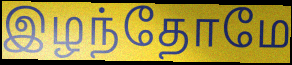
இழந்தோமே